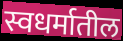
स्वधर्मातील